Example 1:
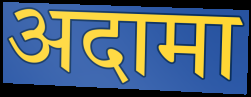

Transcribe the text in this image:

अदामा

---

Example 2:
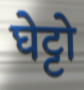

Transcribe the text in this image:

घेट्टो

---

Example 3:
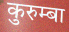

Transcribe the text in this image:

कुरुम्बा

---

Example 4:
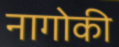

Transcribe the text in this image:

नागोकी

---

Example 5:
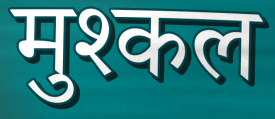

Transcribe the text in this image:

मुश्कल